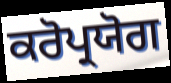
ਕਰੋਪ੍ਰਯੋਗ